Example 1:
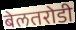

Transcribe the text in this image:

बेलतरोडी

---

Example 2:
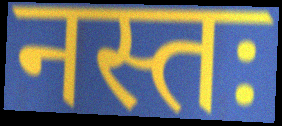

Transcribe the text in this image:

नस्तः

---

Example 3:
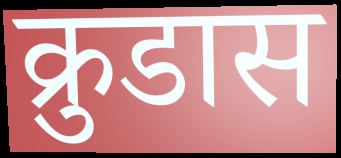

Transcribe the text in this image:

क्रुडास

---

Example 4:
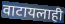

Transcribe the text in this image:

वाटायलाही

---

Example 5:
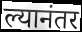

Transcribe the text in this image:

ल्यानंतर